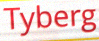
Tyberg